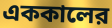
এককালের